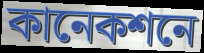
কানেকশনে